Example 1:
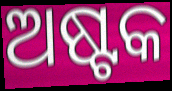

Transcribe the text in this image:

ଅଷ୍ଟକ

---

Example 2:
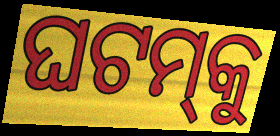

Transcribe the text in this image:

ଘଟମ୍‌କୁ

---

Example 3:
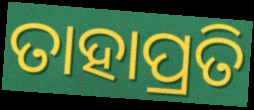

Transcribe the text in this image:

ତାହାପ୍ରତି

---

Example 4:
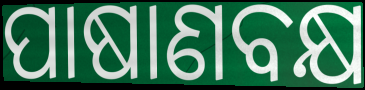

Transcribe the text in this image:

ପାଷାଣବକ୍ଷ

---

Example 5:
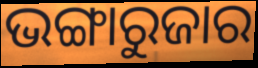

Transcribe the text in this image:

ଭଙ୍ଗାରୁଜାର